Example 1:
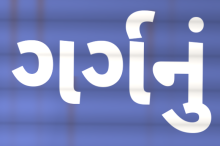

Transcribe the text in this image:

ગર્ગનું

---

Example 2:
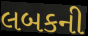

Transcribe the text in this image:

લબકની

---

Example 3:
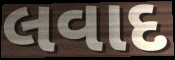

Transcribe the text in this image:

લવાદ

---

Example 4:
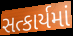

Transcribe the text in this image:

સત્કાર્યમાં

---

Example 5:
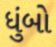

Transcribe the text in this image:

ધુંબો